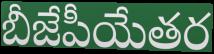
బీజేపీయేతర